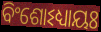
ବିଂଶୋଽଧ୍ୟାୟଃ